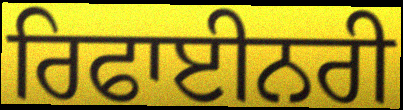
ਰਿਫਾਈਨਰੀ